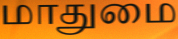
மாதுமை